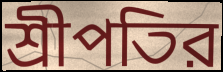
শ্রীপতির